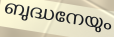
ബുദ്ധനേയും